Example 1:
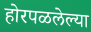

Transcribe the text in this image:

होरपळलेल्या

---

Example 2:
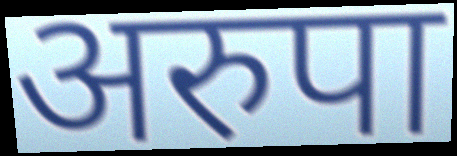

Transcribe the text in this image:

अरुपा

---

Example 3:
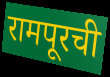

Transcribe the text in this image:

रामपूरची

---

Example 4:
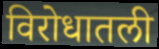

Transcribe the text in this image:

विरोधातली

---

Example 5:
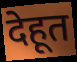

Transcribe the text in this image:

देहूत